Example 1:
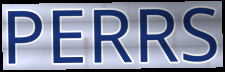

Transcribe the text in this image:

PERRS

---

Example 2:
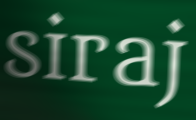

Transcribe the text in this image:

siraj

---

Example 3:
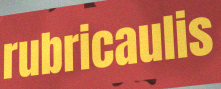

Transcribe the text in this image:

rubricaulis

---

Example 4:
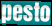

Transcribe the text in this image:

pesto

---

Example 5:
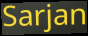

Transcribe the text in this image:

Sarjan